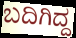
ಬದಿಗಿದ್ದ